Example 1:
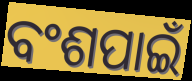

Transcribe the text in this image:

ବଂଶପାଇଁ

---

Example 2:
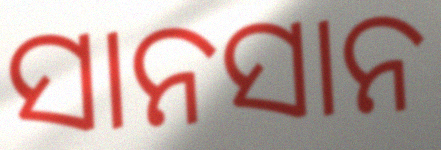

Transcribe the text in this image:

ସାନସାନ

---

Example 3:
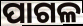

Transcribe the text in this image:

ପାଗଳ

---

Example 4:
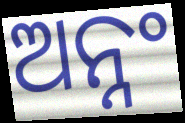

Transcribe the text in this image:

ଅନ୍ନଂ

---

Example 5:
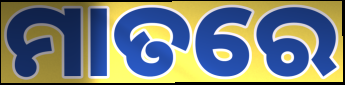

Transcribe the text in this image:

ମାତରେ